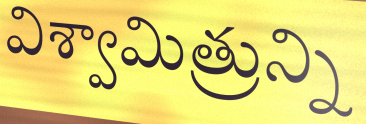
విశ్వామిత్రున్ని